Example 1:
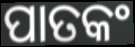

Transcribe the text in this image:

ପାତକଂ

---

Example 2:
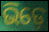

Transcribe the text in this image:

ଭିଡ଼େ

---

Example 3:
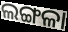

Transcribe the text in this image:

ଲଙ୍ଗଳା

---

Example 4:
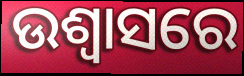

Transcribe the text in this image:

ଉଶ୍ଵାସରେ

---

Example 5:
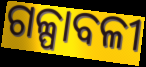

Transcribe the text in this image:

ଗଳ୍ପାବଳୀ